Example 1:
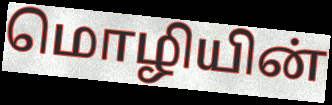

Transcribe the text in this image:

மொழியின்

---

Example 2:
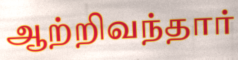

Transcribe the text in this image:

ஆற்றிவந்தார்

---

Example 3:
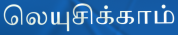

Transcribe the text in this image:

லெயுசிக்காம்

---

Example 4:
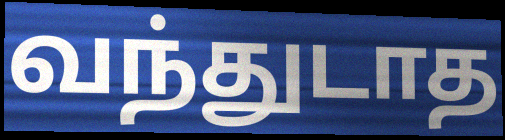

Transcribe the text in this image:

வந்துடாத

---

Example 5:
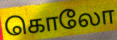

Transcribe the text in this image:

கொலோ